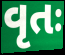
વૃતઃ